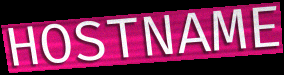
HOSTNAME